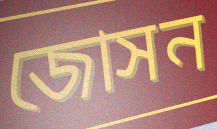
জোসন